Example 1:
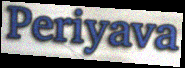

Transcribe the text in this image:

Periyava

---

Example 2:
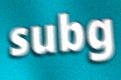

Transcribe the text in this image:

subg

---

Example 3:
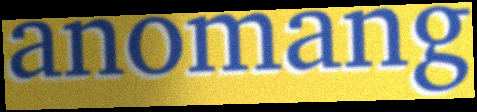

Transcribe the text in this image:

anomang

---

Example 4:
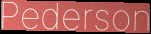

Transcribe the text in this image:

Pederson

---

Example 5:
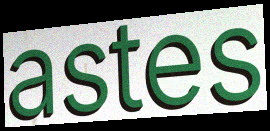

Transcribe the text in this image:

astes